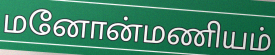
மனோன்மணியம்